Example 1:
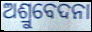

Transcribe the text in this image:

ଅଶ୍ରୁବେଦନା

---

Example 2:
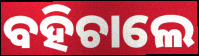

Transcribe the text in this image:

ବହିଚାଲେ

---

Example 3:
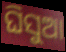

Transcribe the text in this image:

ଘିସୁଆ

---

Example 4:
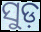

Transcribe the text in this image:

ସୁଡ଼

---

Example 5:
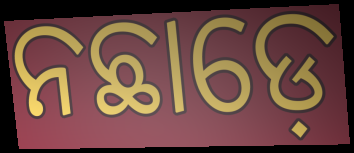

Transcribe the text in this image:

ନଛାଡ଼େ